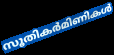
സൂതികർമിണികൾ